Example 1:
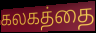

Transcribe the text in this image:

கலகத்தை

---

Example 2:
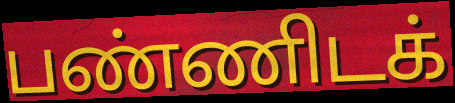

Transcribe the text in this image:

பண்ணிடக்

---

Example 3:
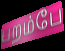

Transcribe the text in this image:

பறம்பே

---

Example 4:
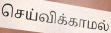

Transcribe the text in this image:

செய்விக்காமல்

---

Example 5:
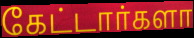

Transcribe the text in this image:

கேட்டார்களா